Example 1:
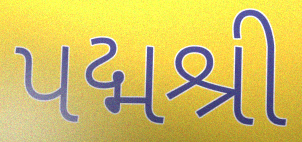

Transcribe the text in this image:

પદ્મશ્રી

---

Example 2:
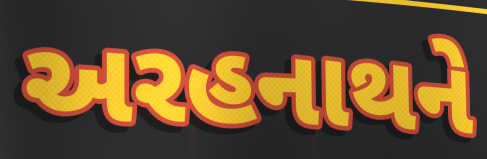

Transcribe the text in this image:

અરહનાથને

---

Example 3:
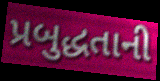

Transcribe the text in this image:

પ્રબુદ્ધતાની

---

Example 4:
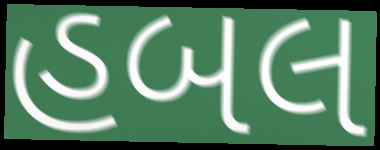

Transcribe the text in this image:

હબલ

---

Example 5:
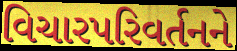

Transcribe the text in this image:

વિચારપરિવર્તનને